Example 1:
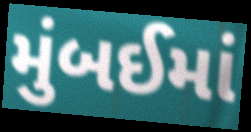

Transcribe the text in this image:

મુંબઈમાં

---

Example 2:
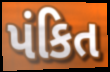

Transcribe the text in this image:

પંકિત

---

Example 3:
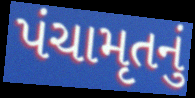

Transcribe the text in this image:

પંચામૃતનું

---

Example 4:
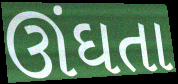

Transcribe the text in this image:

ઊંઘતા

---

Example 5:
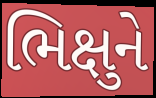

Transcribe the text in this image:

ભિક્ષુને